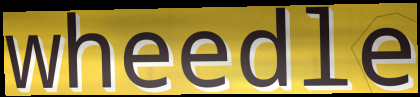
wheedle